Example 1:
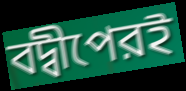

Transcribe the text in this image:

বদ্বীপেরই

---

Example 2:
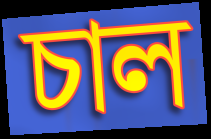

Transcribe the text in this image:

চাল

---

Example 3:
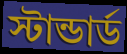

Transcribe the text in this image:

স্টান্ডার্ড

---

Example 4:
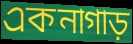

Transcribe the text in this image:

একনাগাড়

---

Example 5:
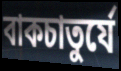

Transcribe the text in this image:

বাকচাতুর্যে